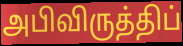
அபிவிருத்திப்